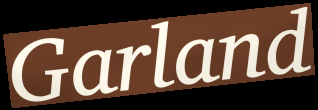
Garland